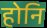
होनि